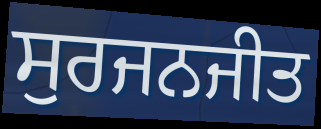
ਸੁਰਜਨਜੀਤ